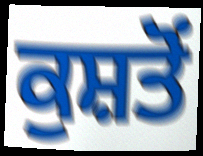
ਕੁਸ਼ਤੋਂ